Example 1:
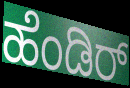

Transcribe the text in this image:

ಹೆಂಡಿರ್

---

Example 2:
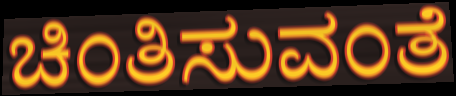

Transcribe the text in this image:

ಚಿಂತಿಸುವಂತೆ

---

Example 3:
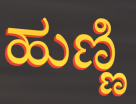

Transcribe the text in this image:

ಹುಣ್ಣಿ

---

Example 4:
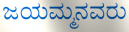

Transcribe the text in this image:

ಜಯಮ್ಮನವರು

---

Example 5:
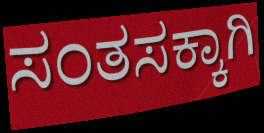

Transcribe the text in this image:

ಸಂತಸಕ್ಕಾಗಿ